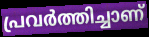
പ്രവർത്തിച്ചാണ്